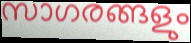
സാഗരങ്ങളും